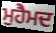
ਮੁਹੈਮਦ